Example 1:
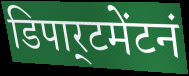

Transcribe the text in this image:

डिपार्टमेंटनं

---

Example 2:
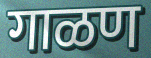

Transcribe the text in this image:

गाळण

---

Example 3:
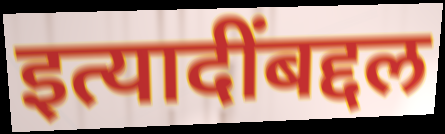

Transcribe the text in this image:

इत्यादींबद्दल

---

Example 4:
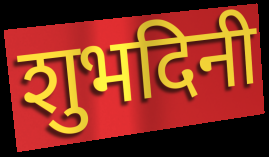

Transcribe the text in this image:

शुभदिनी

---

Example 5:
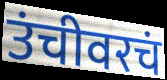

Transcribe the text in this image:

उंचीवरचं